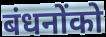
बंधनोंको